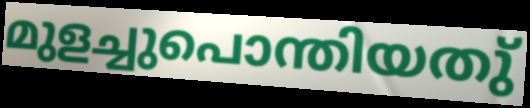
മുളച്ചുപൊന്തിയതു്